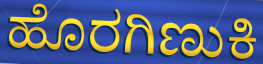
ಹೊರಗಿಣುಕಿ